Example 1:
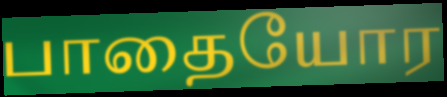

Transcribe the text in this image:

பாதையோர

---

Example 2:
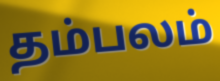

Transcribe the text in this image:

தம்பலம்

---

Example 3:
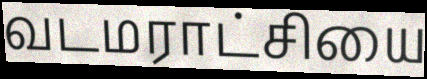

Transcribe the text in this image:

வடமராட்சியை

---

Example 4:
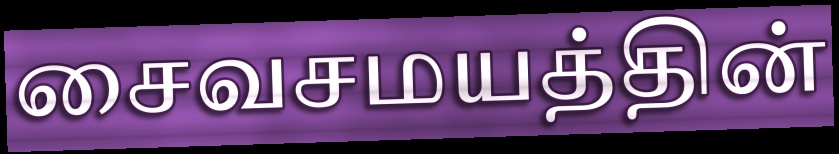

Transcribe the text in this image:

சைவசமயத்தின்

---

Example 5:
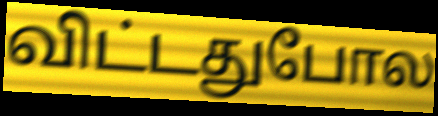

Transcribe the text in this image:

விட்டதுபோல